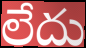
లేదు